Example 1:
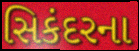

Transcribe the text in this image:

સિકંદરના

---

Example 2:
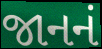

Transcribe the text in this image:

જાનનં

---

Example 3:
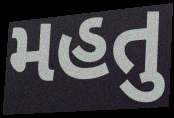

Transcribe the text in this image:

મહતુ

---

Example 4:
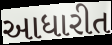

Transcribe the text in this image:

આધારીત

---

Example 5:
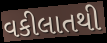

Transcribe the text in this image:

વકીલાતથી